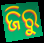
ଜିରୁ